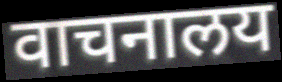
वाचनालय